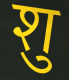
शु